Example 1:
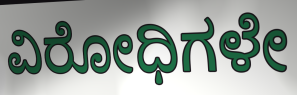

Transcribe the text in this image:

ವಿರೋಧಿಗಳೇ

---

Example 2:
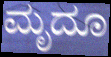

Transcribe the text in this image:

ಮೃದೂ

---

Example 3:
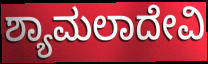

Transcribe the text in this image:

ಶ್ಯಾಮಲಾದೇವಿ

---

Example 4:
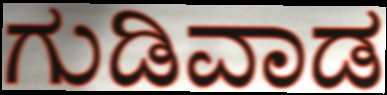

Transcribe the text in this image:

ಗುಡಿವಾಡ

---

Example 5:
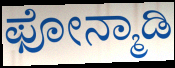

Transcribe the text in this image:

ಫೋನ್ಮಾಡಿ